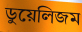
ডুয়েলিজম